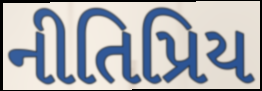
નીતિપ્રિય